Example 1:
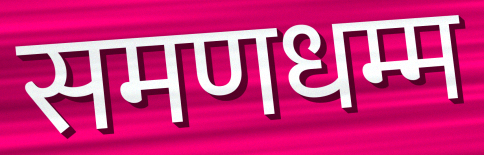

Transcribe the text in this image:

समणधम्म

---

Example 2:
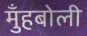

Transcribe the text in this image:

मुँहबोली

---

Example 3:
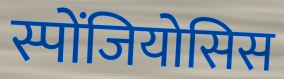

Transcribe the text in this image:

स्पोंजियोसिस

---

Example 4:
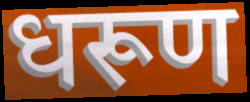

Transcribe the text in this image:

धरूण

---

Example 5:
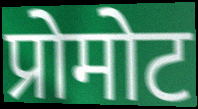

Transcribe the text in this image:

प्रोमोट